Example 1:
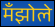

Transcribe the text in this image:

मँझोले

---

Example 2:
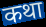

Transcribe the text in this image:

कथा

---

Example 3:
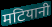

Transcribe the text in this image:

मटियानी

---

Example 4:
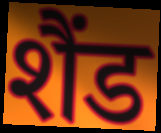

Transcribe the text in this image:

शैंड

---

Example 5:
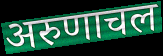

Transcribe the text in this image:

अरुणाचल